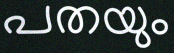
പതയും